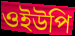
ওইউপি